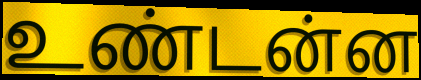
உண்டன்ன